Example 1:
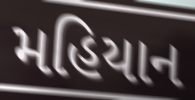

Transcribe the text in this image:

મહિયાન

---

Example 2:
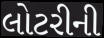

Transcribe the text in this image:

લોટરીની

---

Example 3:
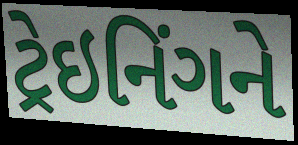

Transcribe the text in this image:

ટ્રેઇનિંગને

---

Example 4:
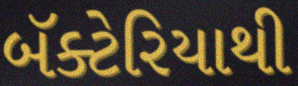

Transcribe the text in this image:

બૅક્ટેરિયાથી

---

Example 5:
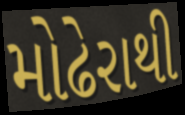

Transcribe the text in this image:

મોઢેરાથી